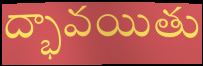
ద్భావయితు